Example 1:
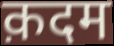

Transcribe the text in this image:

क़दम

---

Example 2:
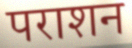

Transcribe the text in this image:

पराशन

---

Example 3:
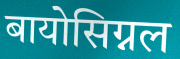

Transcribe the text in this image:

बायोसिग्नल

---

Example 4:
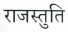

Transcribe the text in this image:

राजस्तुति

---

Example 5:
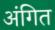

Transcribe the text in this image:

अंगित